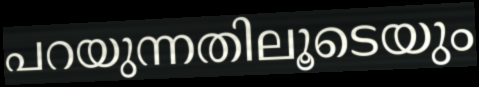
പറയുന്നതിലൂടെയും